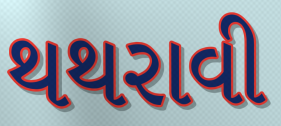
થથરાવી